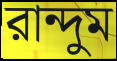
রান্দুম